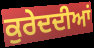
ਕੁਰੇਦਦੀਆਂ